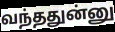
வந்ததுன்னு